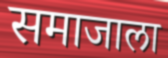
समाजाला